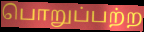
பொறுப்பற்ற